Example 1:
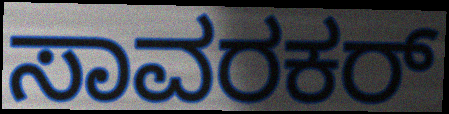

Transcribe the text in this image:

ಸಾವರಕರ್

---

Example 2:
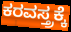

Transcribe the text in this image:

ಕರವಸ್ತ್ರಕ್ಕೆ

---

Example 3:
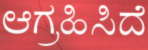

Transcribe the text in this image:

ಆಗ್ರಹಿಸಿದೆ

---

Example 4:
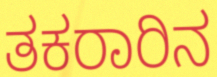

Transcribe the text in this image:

ತಕರಾರಿನ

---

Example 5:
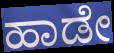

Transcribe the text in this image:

ಹಾಡೇ